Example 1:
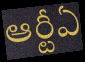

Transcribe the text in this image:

ఆర్టీఏ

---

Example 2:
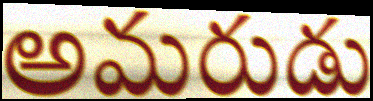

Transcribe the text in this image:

అమరుడు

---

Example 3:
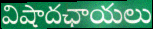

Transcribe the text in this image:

విషాదఛాయలు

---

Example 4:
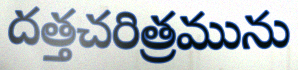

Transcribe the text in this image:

దత్తచరిత్రమును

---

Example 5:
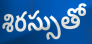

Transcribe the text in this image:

శిరస్సుతో